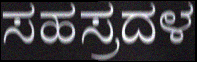
ಸಹಸ್ರದಳ